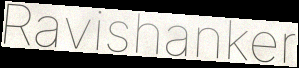
Ravishanker